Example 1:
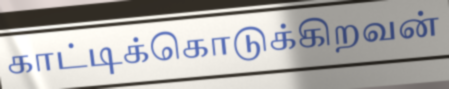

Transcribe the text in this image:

காட்டிக்கொடுக்கிறவன்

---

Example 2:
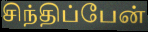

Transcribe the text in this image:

சிந்திப்பேன்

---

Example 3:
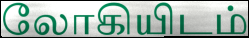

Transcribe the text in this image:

லோகியிடம்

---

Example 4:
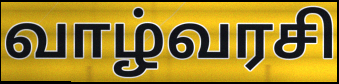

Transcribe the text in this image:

வாழ்வரசி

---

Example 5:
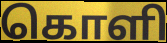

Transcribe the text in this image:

கொளி